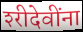
श्रीदेवींना